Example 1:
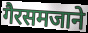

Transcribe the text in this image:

गैरसमजाने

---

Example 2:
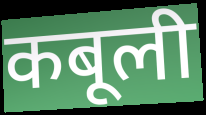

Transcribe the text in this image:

कबूली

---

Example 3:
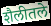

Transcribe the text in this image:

शैलीतले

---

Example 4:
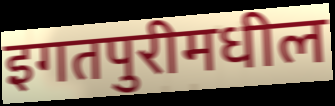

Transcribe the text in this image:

इगतपुरीमधील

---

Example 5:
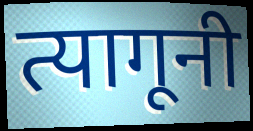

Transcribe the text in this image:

त्यागूनी